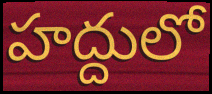
హద్దులో